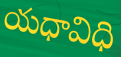
యధావిధి